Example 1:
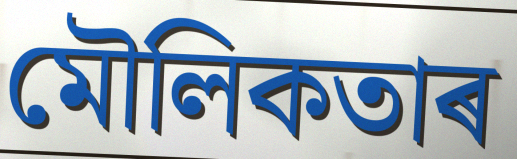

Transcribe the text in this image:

মৌলিকতাৰ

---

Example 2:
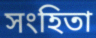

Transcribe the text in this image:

সংহিতা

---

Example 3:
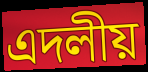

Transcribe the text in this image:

এদলীয়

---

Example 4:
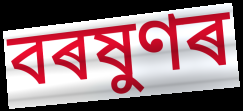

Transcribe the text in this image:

বৰষুণৰ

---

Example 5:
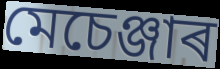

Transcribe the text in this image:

মেচেঞ্জাৰ